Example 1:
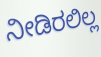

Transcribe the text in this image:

ನೀಡಿರಲಿಲ್ಲ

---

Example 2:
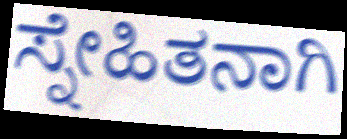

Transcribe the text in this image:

ಸ್ನೇಹಿತನಾಗಿ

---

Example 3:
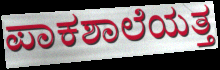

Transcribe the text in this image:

ಪಾಕಶಾಲೆಯತ್ತ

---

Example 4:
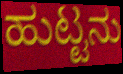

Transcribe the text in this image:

ಹುಟ್ಟನು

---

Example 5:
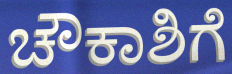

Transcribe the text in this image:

ಚೌಕಾಶಿಗೆ